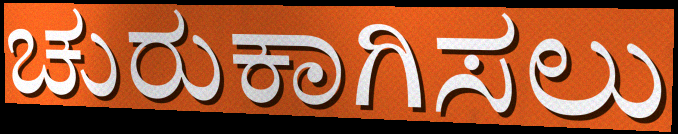
ಚುರುಕಾಗಿಸಲು